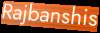
Rajbanshis